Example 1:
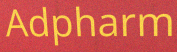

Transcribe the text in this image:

Adpharm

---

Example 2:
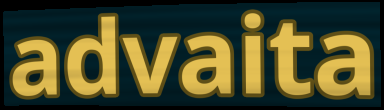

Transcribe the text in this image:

advaita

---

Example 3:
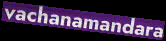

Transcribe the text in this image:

vachanamandara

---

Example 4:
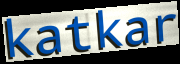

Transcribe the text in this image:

katkar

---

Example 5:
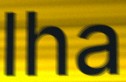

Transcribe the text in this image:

lha